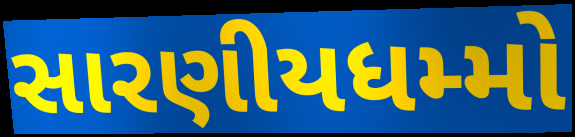
સારણીયધમ્મો